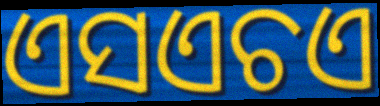
ଏସଏଚଏ